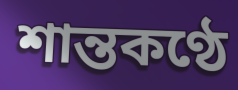
শান্তকণ্ঠে